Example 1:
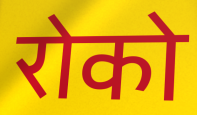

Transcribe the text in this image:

रोको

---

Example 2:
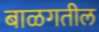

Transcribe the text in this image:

बाळगतील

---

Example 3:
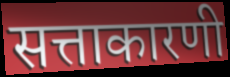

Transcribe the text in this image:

सत्ताकारणी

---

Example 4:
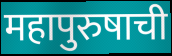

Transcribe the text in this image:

महापुरुषाची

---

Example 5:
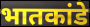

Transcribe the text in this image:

भातकांडे